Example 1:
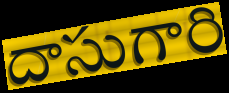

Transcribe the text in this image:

దాసుగారి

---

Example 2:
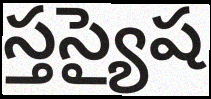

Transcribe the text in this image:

స్తస్యైష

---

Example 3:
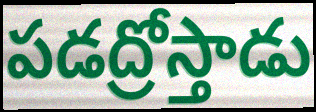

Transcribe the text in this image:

పడద్రోస్తాడు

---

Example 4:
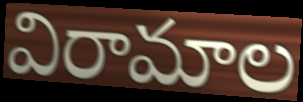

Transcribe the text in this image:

విరామాల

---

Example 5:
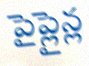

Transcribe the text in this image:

పైప్లైన్ల